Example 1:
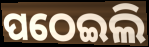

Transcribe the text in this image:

ପଠେଇଲି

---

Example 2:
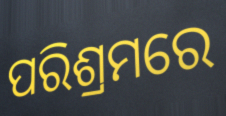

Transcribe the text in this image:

ପରିଶ୍ରମରେ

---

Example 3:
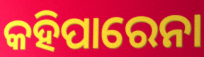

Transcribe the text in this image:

କହିପାରେନା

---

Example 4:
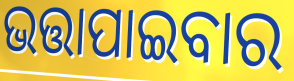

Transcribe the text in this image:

ଭତ୍ତାପାଇବାର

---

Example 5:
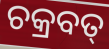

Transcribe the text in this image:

ଚକ୍ରବତ୍